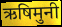
ऋषिमुनी